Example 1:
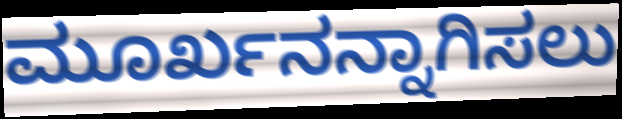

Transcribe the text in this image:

ಮೂರ್ಖನನ್ನಾಗಿಸಲು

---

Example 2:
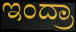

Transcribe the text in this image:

ಇಂದ್ರಾ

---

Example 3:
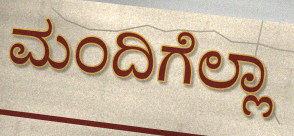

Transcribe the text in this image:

ಮಂದಿಗೆಲ್ಲಾ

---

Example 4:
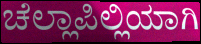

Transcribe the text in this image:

ಚೆಲ್ಲಾಪಿಲ್ಲಿಯಾಗಿ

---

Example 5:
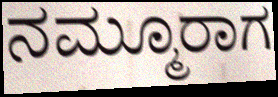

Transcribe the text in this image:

ನಮ್ಮೂರಾಗ